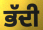
ਭੱਦੀ